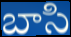
బాసి